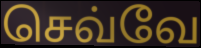
செவ்வே